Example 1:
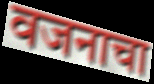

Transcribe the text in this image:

वजनाचा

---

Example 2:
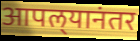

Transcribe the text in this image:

आपल्यानंतर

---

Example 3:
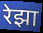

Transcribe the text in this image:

रेझा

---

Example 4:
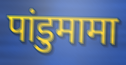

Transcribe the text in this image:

पांडुमामा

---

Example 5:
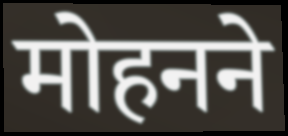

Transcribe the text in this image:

मोहनने